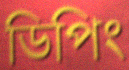
ডিপিং